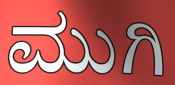
ಮುಗಿ